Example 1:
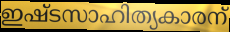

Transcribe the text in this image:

ഇഷ്ടസാഹിത്യകാരന്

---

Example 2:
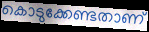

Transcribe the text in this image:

കൊടുക്കേണ്ടതാണ്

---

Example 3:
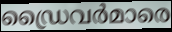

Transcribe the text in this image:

ഡ്രൈവർമാരെ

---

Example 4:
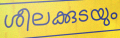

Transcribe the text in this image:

ശീലക്കുടയും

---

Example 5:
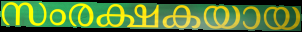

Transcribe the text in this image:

സംരക്ഷകയായ